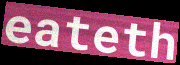
eateth